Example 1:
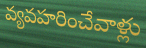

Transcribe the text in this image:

వ్యవహరించేవాళ్లు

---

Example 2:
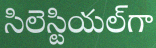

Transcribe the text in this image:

సిలెస్టియల్‌గా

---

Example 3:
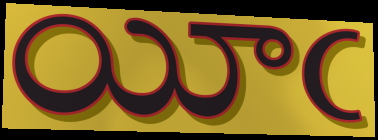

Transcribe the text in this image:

యీఁ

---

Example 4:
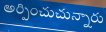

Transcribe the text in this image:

అర్పించుచున్నారు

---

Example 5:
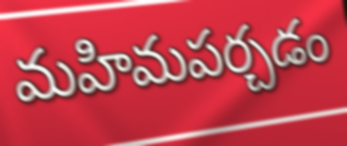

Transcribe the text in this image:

మహిమపర్చడం